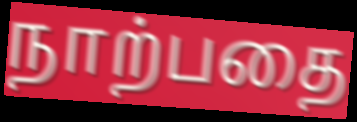
நாற்பதை